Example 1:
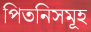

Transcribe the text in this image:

পিতনিসমূহ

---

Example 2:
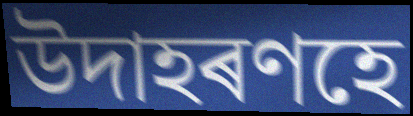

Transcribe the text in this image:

উদাহৰণহে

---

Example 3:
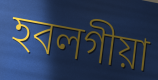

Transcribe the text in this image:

হবলগীয়া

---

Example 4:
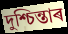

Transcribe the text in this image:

দুশ্চিন্তাৰ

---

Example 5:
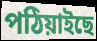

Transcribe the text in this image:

পঠিয়াইছে